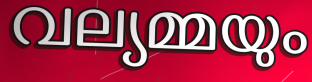
വല്യമ്മയും